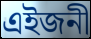
এইজনী